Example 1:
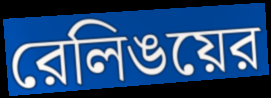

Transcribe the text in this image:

রেলিঙয়ের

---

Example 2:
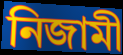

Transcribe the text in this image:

নিজামী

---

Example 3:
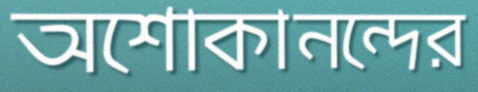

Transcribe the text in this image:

অশোকানন্দের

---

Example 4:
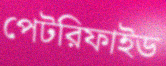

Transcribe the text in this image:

পেটরিফাইড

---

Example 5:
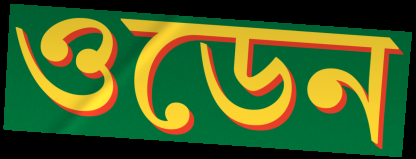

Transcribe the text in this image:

ওডেন